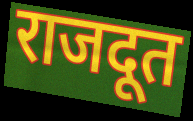
राजदूत